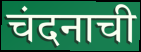
चंदनाची